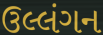
ઉલ્લંગન